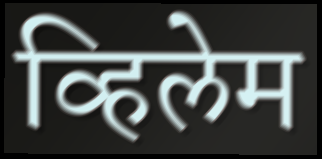
व्हिलेम